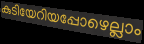
കുടിയേറിയപ്പോഴെല്ലാം